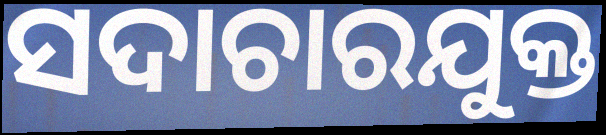
ସଦାଚାରଯୁକ୍ତ